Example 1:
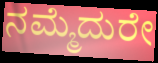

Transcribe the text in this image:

ನಮ್ಮೆದುರೇ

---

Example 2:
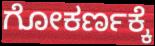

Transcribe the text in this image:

ಗೋಕರ್ಣಕ್ಕೆ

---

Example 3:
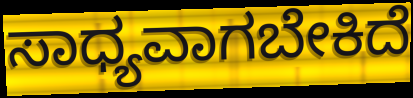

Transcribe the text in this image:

ಸಾಧ್ಯವಾಗಬೇಕಿದೆ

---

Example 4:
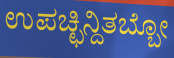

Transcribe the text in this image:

ಉಪಚ್ಛಿನ್ದಿತಬ್ಬೋ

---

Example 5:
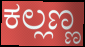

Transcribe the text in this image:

ಕಲ್ಲಣ್ಣ